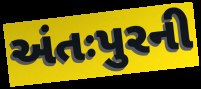
અંતઃપુરની